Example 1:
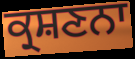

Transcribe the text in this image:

ਕ੍ਰਸ਼ਣਨਾ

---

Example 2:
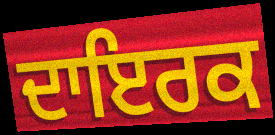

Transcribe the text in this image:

ਦਾਇਰਕ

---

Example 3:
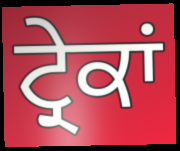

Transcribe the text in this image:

ਟ੍ਰੇਕਾਂ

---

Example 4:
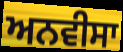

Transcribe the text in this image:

ਅਨਵੀਸਾ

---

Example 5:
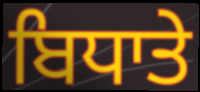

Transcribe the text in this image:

ਬਿਧਾਤੇ